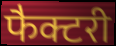
फैक्टरी